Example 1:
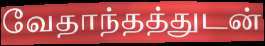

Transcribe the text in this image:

வேதாந்தத்துடன்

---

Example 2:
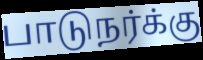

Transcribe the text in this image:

பாடுநர்க்கு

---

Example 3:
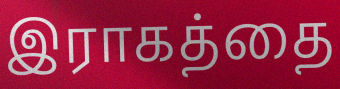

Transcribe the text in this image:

இராகத்தை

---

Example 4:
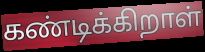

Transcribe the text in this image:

கண்டிக்கிறாள்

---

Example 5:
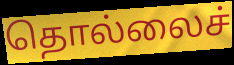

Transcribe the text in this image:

தொல்லைச்